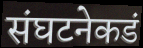
संघटनेकडं